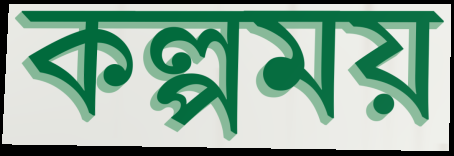
কল্পময়